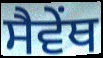
ਸੈਵੇਂਥ